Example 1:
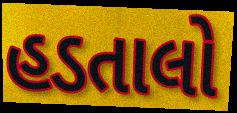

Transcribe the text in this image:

હડતાલો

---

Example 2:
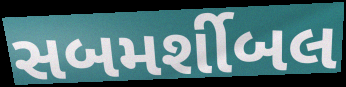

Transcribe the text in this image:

સબમર્શીબલ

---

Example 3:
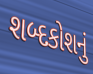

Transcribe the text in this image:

શબ્દકોશનું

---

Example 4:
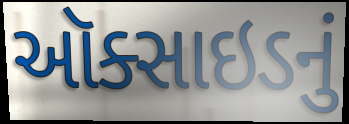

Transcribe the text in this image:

ઑક્સાઇડનું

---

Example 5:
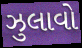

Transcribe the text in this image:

ઝુલાવો